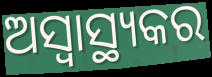
ଅସ୍ୱାସ୍ଥ୍ୟକର